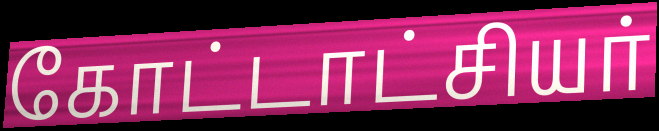
கோட்டாட்சியர்